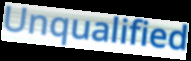
Unqualified